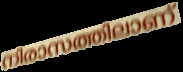
നിരാസത്തിലാണ്